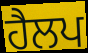
ਹੈਲਪ